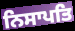
ਨਿਸਾਪਤਿ